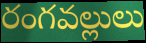
రంగవల్లులు